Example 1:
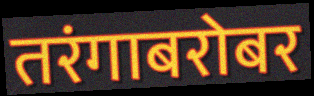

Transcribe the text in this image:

तरंगाबरोबर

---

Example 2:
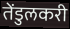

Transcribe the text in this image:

तेंडुलकरी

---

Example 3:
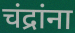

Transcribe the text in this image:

चंद्रांना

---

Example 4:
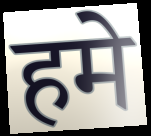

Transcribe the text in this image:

हमे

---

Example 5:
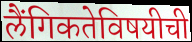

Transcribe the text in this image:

लैंगिकतेविषयीची